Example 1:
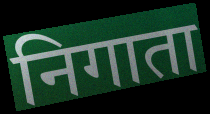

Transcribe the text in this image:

निगाता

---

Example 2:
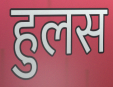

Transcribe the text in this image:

हुलस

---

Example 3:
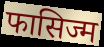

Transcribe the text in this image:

फासिज्म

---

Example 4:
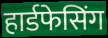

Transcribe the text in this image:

हार्डफेसिंग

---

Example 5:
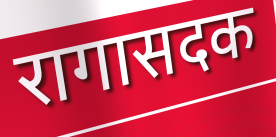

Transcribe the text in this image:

रागासदक